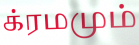
க்ரமமும்